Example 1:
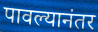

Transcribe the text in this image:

पावल्यानंतर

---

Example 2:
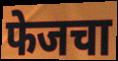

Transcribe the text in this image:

फेजचा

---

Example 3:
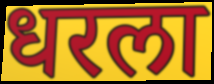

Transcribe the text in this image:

धरला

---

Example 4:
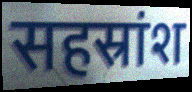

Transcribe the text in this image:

सहस्रांश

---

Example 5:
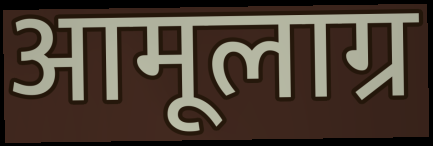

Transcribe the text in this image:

आमूलाग्र